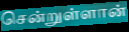
சென்றுள்ளான்